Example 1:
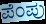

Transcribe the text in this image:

ಪೆಂಪು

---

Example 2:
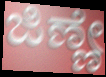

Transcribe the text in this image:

ಜಿಣ್ಣೇ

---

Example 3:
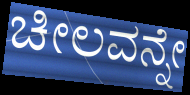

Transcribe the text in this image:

ಚೀಲವನ್ನೇ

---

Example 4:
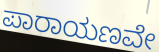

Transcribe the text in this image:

ಪಾರಾಯಣವೇ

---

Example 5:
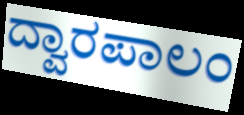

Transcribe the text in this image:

ದ್ವಾರಪಾಲಂ